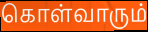
கொள்வாரும்